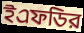
ইএফডির